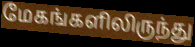
மேகங்களிலிருந்து